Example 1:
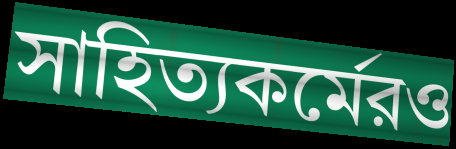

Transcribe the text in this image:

সাহিত্যকর্মেরও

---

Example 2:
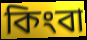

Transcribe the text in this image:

কিংবা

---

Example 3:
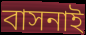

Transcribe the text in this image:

বাসনাই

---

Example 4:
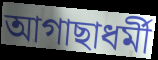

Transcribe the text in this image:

আগাছাধর্মী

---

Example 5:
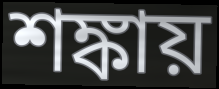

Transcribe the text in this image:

শঙ্কায়